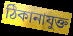
ঠিকানাযুক্ত